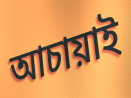
আচায়াই